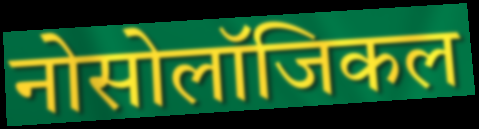
नोसोलॉजिकल